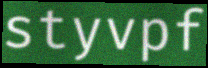
styvpf